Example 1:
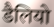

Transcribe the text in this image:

डैलियो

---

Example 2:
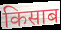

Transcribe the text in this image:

किसाब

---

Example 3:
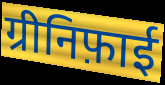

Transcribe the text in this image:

ग्रीनिफ़ाई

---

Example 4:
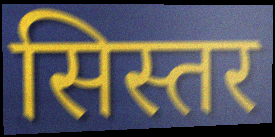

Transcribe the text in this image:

सिस्तर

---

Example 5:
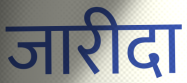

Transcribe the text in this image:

जारीदा